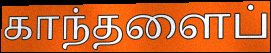
காந்தளைப்